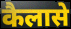
कैलासे